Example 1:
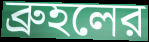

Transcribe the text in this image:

ব্রুহলের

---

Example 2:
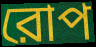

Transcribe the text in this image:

রোপ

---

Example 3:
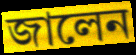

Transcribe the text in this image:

জালেন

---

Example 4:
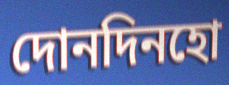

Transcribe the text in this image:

দোনদিনহো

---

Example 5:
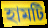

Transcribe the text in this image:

হামটি